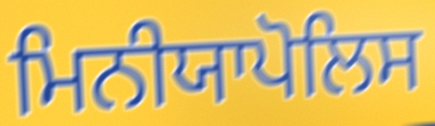
ਮਿਨੀਯਾਪੋਲਿਸ